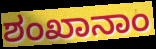
ಶಂಖಾನಾಂ